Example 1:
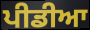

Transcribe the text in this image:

ਪੀਡੀਆ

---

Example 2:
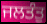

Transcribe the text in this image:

ਜਲਤੰਤੁ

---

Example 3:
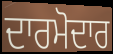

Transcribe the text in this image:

ਦਾਰਮੋਦਾਰ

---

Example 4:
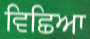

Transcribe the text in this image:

ਵਿਛਿਆ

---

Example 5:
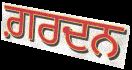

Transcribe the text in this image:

ਗ਼ਰਦਨ